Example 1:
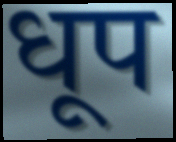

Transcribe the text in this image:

धूप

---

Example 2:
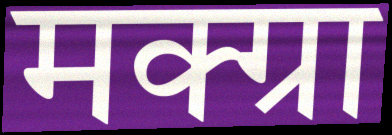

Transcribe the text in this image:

मक्ग्रा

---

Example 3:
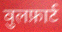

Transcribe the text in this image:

वुलफ़ार्ट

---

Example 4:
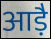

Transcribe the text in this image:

आड़ै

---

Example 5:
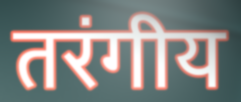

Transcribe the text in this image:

तरंगीय